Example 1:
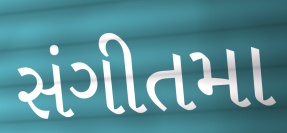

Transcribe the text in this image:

સંગીતમા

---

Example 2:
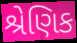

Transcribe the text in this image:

શ્રેણિક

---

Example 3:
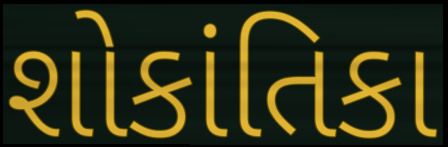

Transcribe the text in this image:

શોકાંતિકા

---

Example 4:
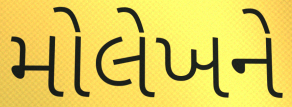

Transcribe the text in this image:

મોલેખને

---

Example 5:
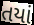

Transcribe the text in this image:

તયાં